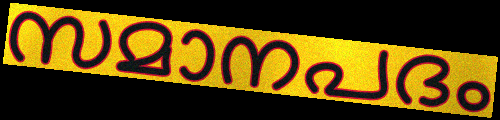
സമാനപദം